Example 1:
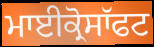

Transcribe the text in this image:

ਮਾਈਕ੍ਰੋਸਾੱਫਟ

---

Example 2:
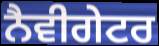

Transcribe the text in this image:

ਨੈਵੀਗੇਟਰ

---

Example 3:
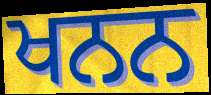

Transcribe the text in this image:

ਖਨਨ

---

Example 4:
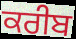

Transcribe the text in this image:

ਕਰੀਬ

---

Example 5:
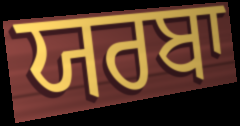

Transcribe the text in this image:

ਯਰਬਾ